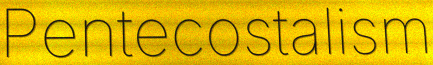
Pentecostalism